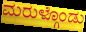
ಮರುಳ್ಗೊಂಡು